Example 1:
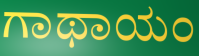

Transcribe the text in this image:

ಗಾಥಾಯಂ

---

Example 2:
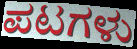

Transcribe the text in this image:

ಪಟಗಳು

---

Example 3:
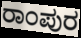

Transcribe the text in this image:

ರಾಂಪುರ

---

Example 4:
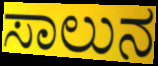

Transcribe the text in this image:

ಸಾಲುನ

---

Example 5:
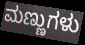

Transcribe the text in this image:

ಮಣ್ಣುಗಳು